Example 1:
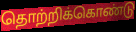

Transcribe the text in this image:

தொற்றிக்கொண்டு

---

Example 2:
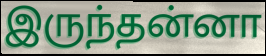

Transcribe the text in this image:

இருந்தன்னா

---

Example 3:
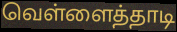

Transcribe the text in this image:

வெள்ளைத்தாடி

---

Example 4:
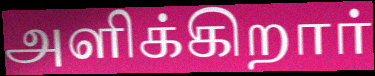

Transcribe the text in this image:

அளிக்கிறார்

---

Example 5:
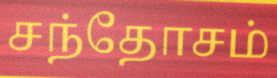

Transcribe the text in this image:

சந்தோசம்